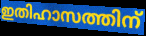
ഇതിഹാസത്തിന്